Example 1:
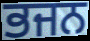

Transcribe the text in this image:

ਭਜਨ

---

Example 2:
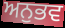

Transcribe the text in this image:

ਅਨੁਭਵ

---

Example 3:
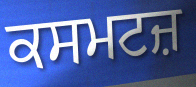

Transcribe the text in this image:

ਕਸਮਟਜ਼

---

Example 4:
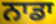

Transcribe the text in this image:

ਨਾਡਾ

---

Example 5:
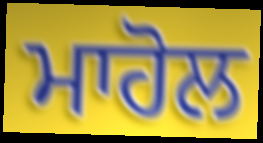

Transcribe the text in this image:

ਮਾਹੋਲ